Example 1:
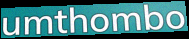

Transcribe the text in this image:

umthombo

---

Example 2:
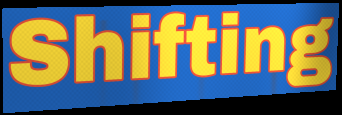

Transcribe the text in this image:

Shifting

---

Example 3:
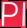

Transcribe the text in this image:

Pl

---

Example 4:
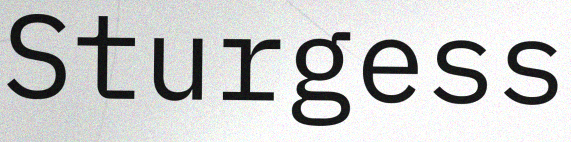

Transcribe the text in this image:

Sturgess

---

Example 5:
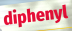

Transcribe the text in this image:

diphenyl